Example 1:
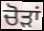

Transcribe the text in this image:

ਚੋੜਾਂ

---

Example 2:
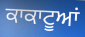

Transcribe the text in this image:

ਕਾਕਾਟੂਆਂ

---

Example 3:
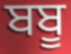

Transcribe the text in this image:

ਬਬੂ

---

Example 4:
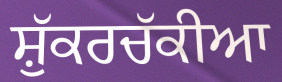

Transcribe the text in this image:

ਸ਼ੁੱਕਰਚੱਕੀਆ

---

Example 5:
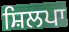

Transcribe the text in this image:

ਸ਼ਿਲਪਾ